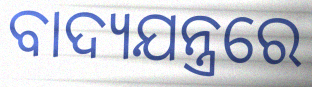
ବାଦ୍ୟଯନ୍ତ୍ରରେ